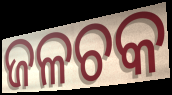
ଜଳଚକ